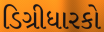
ડિગ્રીધારકો